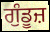
ਗੁੰਡੂਜ਼